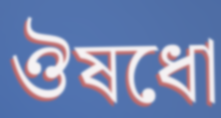
ঔষধো